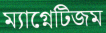
ম্যাগ্নেটিজম